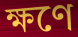
ক্ষণে